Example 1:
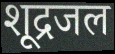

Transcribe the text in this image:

शूद्रजल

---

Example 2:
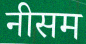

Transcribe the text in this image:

नीसम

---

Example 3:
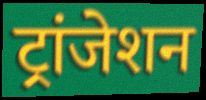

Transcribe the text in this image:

ट्रांजेशन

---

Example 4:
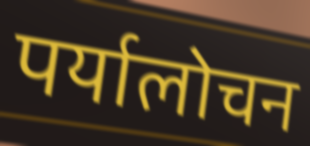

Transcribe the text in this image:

पर्यालोचन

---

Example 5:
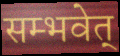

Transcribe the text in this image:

सम्भवेत्